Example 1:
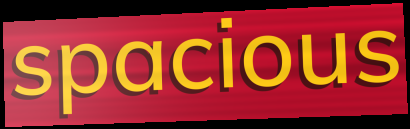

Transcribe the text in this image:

spacious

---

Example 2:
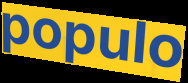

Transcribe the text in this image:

populo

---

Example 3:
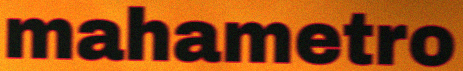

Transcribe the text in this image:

mahametro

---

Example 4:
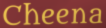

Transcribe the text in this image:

Cheena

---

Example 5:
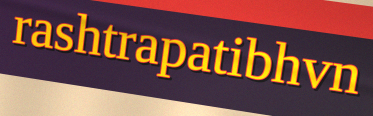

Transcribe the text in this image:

rashtrapatibhvn